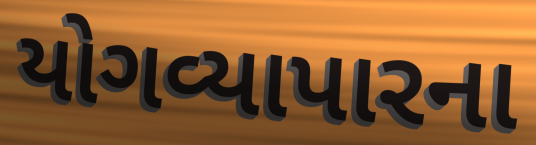
યોગવ્યાપારના